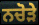
ਨਚੋੜੇ